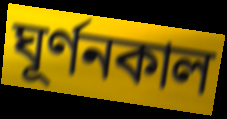
ঘূর্ণনকাল